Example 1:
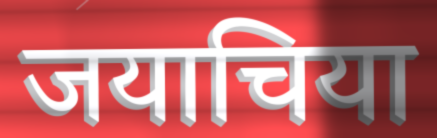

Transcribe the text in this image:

जयाचिया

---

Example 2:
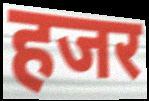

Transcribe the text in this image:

हजर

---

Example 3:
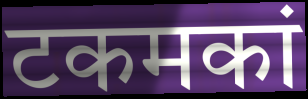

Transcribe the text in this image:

टकमकां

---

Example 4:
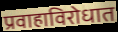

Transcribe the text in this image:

प्रवाहाविरोधात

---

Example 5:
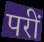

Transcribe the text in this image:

परीं